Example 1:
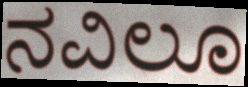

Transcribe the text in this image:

ನವಿಲೂ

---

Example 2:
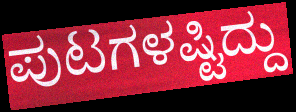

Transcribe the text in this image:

ಪುಟಗಳಷ್ಟಿದ್ದು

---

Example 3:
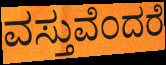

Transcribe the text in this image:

ವಸ್ತುವೆಂದರೆ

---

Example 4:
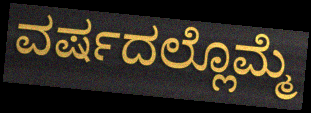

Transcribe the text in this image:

ವರ್ಷದಲ್ಲೊಮ್ಮೆ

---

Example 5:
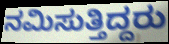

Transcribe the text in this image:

ನಮಿಸುತ್ತಿದ್ದರು